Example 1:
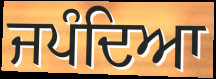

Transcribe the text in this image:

ਜਪੰਦਿਆ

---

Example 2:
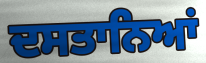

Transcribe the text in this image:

ਦਸਤਾਨਿਆਂ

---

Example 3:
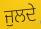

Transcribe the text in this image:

ਜੁਲਦੇ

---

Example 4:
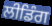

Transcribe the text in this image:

ਲੀਡਿੰਗ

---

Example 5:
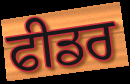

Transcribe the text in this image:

ਫੀਡਰ